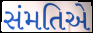
સંમતિએ